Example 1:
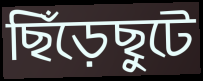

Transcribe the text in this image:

ছিঁড়েছুটে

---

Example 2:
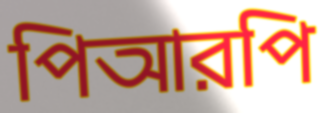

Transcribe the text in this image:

পিআরপি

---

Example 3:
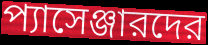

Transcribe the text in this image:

প্যাসেঞ্জারদের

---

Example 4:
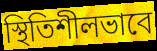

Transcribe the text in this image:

স্থিতিশীলভাবে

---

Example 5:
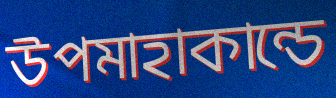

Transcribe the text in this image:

উপমাহাকান্ডে